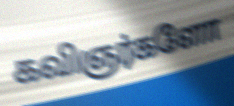
கவிஞர்களோ